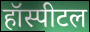
हॉस्पीटल